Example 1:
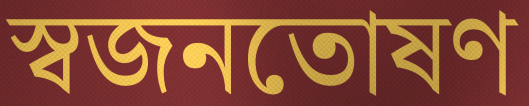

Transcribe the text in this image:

স্বজনতোষণ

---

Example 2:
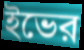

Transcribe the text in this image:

ইভের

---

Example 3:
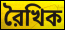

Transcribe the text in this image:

রৈখিক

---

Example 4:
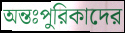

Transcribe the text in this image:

অন্তঃপুরিকাদের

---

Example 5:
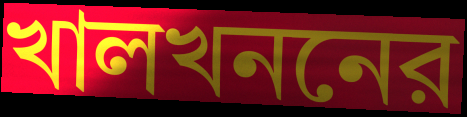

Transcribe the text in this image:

খালখননের